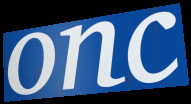
onc